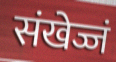
संखेज्जं